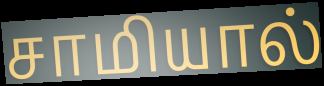
சாமியால்